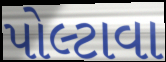
પોલ્ટાવા